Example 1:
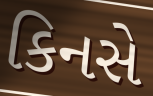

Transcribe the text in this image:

કિનસે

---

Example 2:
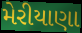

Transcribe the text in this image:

મેરીયાણા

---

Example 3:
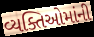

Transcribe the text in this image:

વ્યક્તિઓમાંની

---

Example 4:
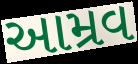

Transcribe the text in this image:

આમ્રવ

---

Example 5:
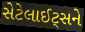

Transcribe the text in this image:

સેટેલાઈટ્સને